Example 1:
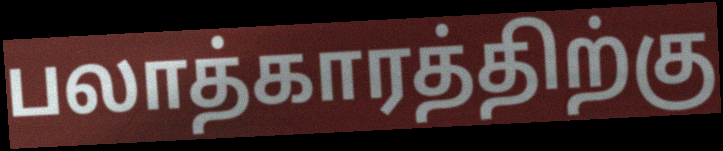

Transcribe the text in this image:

பலாத்காரத்திற்கு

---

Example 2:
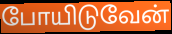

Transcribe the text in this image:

போயிடுவேன்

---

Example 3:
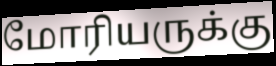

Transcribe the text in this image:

மோரியருக்கு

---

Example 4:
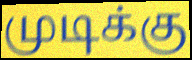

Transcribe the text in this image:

முடிக்கு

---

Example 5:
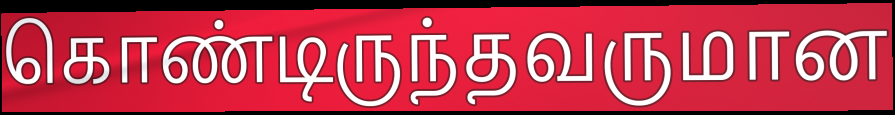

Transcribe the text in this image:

கொண்டிருந்தவருமான